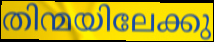
തിന്മയിലേക്കു